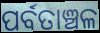
ପର୍ବତାଞ୍ଚଳ